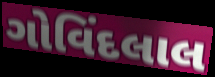
ગોવિંદલાલ